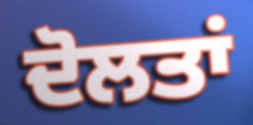
ਦੋਲਤਾਂ